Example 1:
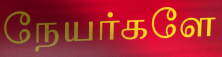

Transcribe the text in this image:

நேயர்களே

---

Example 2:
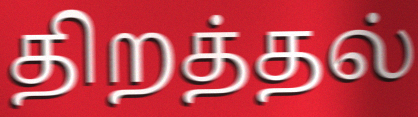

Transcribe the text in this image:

திறத்தல்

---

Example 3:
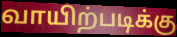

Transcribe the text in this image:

வாயிற்படிக்கு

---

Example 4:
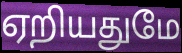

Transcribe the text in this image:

ஏறியதுமே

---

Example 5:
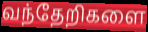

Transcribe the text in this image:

வந்தேறிகளை